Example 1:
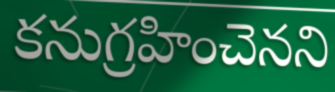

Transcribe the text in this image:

కనుగ్రహించెనని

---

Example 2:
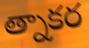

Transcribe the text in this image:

త్నాకర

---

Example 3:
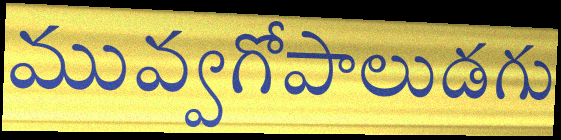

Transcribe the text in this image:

మువ్వగోపాలుడగు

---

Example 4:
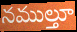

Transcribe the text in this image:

నముల్తూ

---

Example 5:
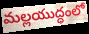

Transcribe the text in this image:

మల్లయుద్ధంలో